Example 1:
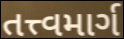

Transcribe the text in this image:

તત્ત્વમાર્ગ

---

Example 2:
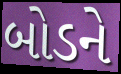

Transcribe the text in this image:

બોડને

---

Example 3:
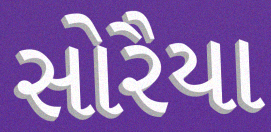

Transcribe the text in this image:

સોરૈયા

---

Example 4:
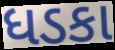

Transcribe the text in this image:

ધડકા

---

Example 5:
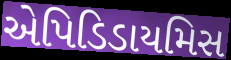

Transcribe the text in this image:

એપિડિડાયમિસ